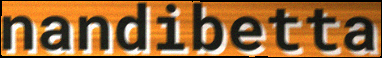
nandibetta